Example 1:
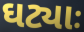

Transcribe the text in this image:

ઘટ્યાઃ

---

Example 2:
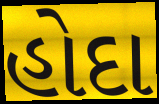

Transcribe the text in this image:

હોદા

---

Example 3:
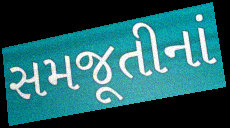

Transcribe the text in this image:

સમજૂતીનાં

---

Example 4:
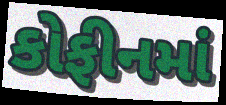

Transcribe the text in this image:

કોફીનમાં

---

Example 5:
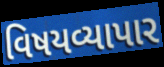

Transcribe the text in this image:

વિષયવ્યાપાર